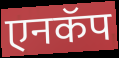
एनकॅप